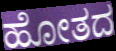
ಹೋತದ